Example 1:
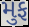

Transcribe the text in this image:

મુફ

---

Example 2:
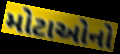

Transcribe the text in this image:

મોટાઓનો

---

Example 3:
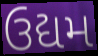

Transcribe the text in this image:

ઉદ્યમ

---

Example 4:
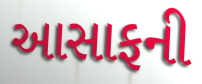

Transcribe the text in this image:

આસાફની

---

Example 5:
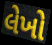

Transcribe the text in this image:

લેખો